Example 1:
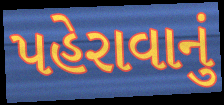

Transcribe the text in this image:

પહેરાવાનું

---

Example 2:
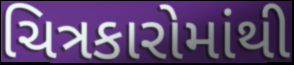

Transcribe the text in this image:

ચિત્રકારોમાંથી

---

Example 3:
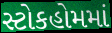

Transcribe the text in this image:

સ્ટોકહોમમાં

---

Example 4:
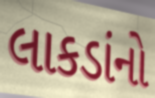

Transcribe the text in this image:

લાકડાંનો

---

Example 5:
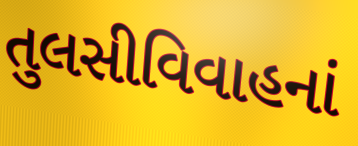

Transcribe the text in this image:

તુલસીવિવાહનાં